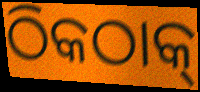
ଠିକଠାକ୍